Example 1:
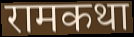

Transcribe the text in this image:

रामकथा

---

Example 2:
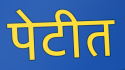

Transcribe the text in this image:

पेटीत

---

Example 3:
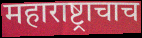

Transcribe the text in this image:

महाराष्ट्राचाच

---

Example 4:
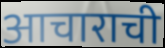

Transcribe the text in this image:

आचाराची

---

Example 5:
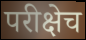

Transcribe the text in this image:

परीक्षेच